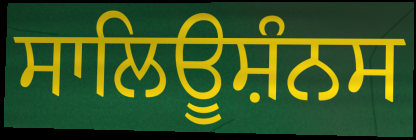
ਸਾਲਿਊਸ਼ੰਨਸ